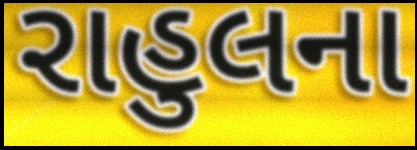
રાહુલના